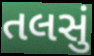
તલસું